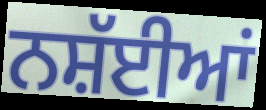
ਨਸ਼ੱਈਆਂ